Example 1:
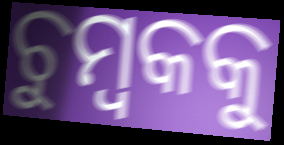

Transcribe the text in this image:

ଚୁମ୍ବକକୁ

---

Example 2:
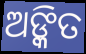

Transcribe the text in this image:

ଅଙ୍କିତ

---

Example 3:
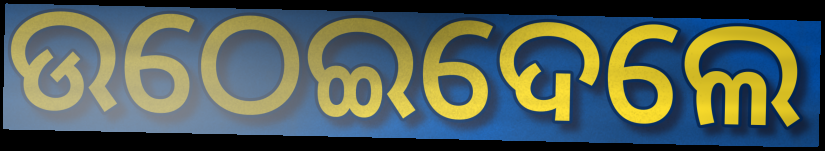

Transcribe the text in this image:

ଉଠେଇଦେଲେ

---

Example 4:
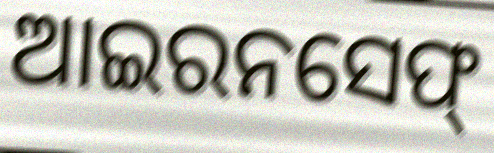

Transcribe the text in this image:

ଆଇରନସେଫ୍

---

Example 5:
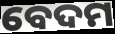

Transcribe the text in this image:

ବେଦମ